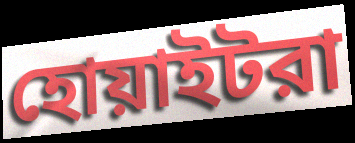
হোয়াইটরা